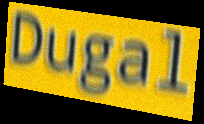
Dugal